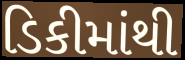
ડિકીમાંથી